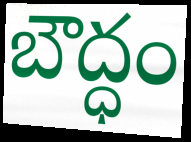
బౌద్ధం